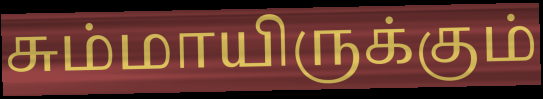
சும்மாயிருக்கும்